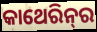
କାଥେରିନ୍‌ର